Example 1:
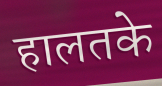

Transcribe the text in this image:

हालतके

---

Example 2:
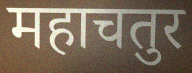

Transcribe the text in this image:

महाचतुर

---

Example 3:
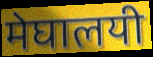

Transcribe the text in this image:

मेघालयी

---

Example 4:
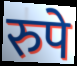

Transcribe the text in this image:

रुपे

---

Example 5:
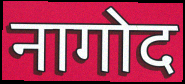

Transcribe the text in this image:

नागोद